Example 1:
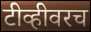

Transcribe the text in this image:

टीव्हीवरच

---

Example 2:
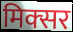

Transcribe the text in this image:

मिक्‍सर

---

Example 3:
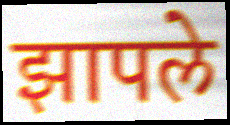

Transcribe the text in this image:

झापले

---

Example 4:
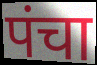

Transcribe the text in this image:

पंचा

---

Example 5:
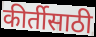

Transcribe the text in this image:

कीर्तीसाठी